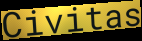
Civitas